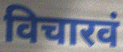
विचारवं